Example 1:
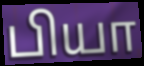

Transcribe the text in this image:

பியா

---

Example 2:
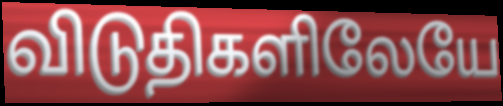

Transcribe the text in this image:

விடுதிகளிலேயே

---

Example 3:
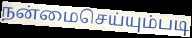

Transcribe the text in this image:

நன்மைசெய்யும்படி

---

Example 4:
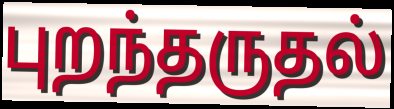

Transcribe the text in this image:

புறந்தருதல்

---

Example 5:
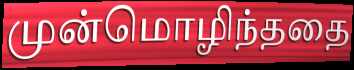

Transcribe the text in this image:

முன்மொழிந்ததை